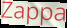
Zappa